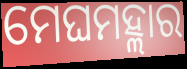
ମେଘମହ୍ଲାର